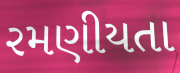
રમણીયતા